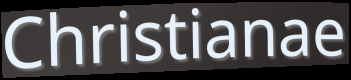
Christianae